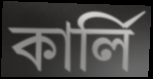
কার্লি